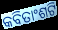
କବିତାଂଶଟି